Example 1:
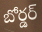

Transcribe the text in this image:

బోర్డర్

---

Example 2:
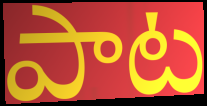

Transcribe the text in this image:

పాట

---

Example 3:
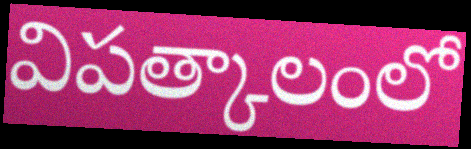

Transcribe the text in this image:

విపత్కాలంలో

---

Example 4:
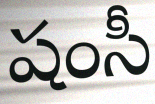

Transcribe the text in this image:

షంసీ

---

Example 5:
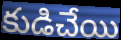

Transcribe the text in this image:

కుడిచేయి